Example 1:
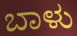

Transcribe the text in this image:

ಬಾಳು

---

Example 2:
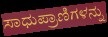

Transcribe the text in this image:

ಸಾಧುಪ್ರಾಣಿಗಳನ್ನು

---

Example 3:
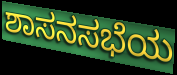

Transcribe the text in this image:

ಶಾಸನಸಭೆಯ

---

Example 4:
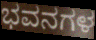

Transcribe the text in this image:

ಭವನಗಳ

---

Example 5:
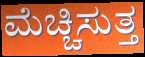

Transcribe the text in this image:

ಮೆಚ್ಚಿಸುತ್ತ